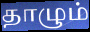
தாழும்